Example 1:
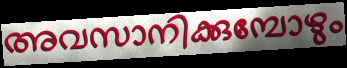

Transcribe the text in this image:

അവസാനിക്കുമ്പോഴും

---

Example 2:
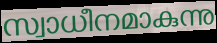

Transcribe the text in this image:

സ്വാധീനമാകുന്നു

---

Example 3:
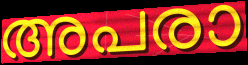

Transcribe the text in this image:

അപരാ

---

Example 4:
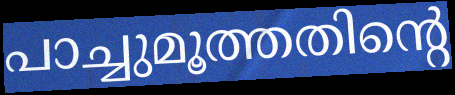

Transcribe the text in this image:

പാച്ചുമൂത്തതിന്റെ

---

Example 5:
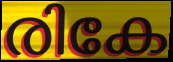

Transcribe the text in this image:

രികേ